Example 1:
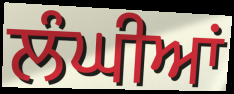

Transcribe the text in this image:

ਲੰਘੀਆਂ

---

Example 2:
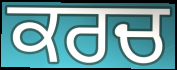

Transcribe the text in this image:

ਕਰਚ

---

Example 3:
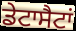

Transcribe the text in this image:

ਡੇਟਾਸੈਟਾਂ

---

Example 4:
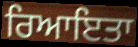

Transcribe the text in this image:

ਰਿਆਇਤਾ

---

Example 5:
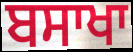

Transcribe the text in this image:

ਬਸਾਖਾ